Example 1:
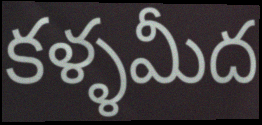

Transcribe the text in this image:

కళ్ళమీద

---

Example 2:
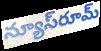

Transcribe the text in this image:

న్యూస్‌రూమ్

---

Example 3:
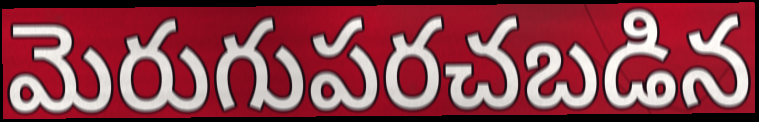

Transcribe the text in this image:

మెరుగుపరచబడిన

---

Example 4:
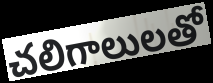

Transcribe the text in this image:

చలిగాలులతో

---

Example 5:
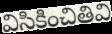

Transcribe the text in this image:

విసికించితివి